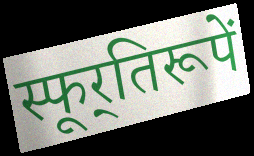
स्फूर्तिरूपें